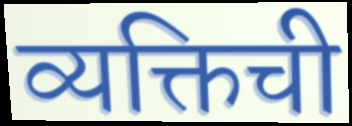
व्यक्तिची